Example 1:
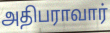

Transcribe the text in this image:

அதிபராவார்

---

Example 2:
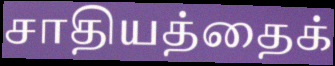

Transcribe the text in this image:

சாதியத்தைக்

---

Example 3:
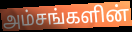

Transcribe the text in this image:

அம்சங்களின்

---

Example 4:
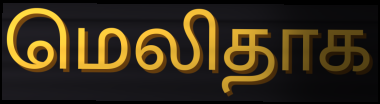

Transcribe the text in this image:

மெலிதாக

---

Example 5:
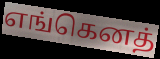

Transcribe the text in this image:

எங்கெனத்